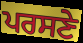
ਪਰਸਣੇ